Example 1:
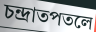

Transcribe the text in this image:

চন্দ্রাতপতলে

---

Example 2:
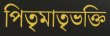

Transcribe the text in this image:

পিতৃমাতৃভক্তি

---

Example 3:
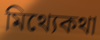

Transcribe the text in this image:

মিথ্যেকথা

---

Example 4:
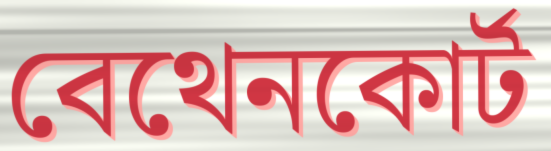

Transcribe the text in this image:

বেথেনকোর্ট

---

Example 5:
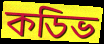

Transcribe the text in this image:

কডিভ